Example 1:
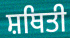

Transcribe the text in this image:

ਸ਼ਥਿਤੀ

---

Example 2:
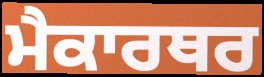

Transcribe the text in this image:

ਮੈਕਾਰਥਰ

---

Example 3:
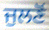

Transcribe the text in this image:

ਜੁਲਣੋਂ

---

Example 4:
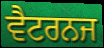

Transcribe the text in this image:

ਵੈਟਰਨਜ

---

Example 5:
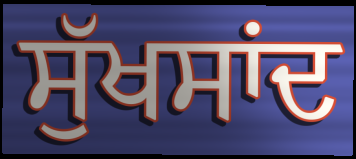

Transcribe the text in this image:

ਸੁੱਖਸਾਂਦ